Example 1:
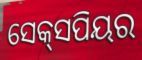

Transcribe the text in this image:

ସେକ୍‌ସପିୟର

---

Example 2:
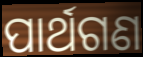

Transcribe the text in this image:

ପାର୍ଥଗଣ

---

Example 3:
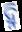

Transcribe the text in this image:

ହ୍ନି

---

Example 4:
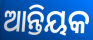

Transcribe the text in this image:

ଆନ୍ତିୟକ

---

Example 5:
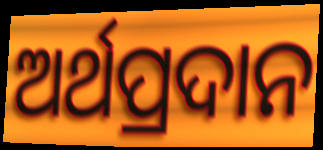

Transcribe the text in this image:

ଅର୍ଥପ୍ରଦାନ